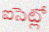
ఐసెట్లో